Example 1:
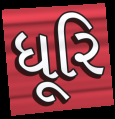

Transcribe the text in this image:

ધૂરિ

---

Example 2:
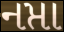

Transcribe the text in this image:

નપ્તા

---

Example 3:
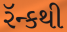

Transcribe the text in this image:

રૅન્કથી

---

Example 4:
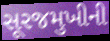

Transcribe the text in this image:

સૂરજમુખીની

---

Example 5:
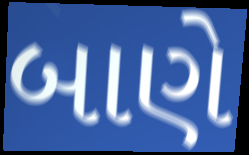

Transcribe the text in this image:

બાણે